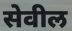
सेवील